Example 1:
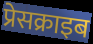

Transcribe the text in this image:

प्रेसक्राइब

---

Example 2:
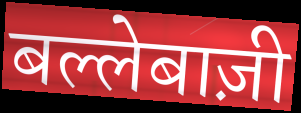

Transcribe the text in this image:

बल्‍लेबाज़ी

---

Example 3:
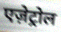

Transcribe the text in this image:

एज़ेट्रोल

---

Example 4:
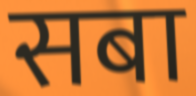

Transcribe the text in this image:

सबा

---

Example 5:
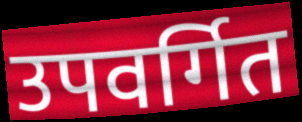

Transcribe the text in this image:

उपवर्गित